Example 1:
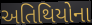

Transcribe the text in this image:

અતિથિયોના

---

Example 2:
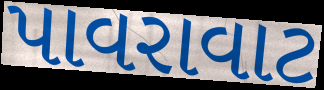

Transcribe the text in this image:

પાવરાવાટ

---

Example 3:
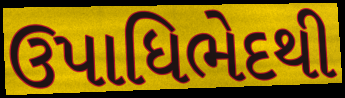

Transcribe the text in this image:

ઉપાધિભેદથી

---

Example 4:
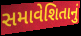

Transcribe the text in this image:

સમાવેશિતાનું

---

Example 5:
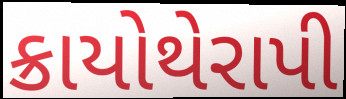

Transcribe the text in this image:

ક્રાયોથેરાપી